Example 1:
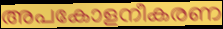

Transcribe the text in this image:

അപകോളനീകരണ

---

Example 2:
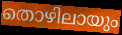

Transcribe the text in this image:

തൊഴിലായും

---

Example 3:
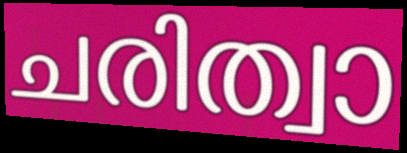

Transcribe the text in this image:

ചരിത്വാ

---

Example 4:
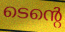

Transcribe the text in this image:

ടെന്റെ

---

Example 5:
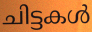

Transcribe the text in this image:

ചിട്ടകൾ